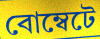
বোম্বেটে